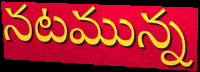
నటమున్న